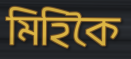
মিহিকৈ